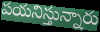
పయనిస్తున్నారు